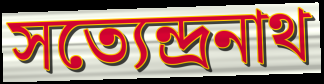
সত্যেন্দ্রনাথ